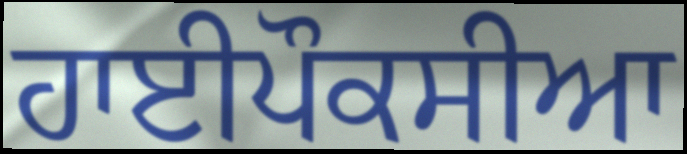
ਹਾਈਪੌਕਸੀਆ